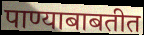
पाण्याबाबतीत